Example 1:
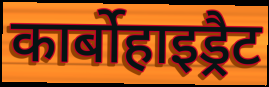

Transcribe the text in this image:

कार्बोहाइड्रैट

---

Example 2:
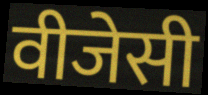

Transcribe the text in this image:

वीजेसी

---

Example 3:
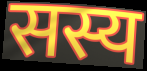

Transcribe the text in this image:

सस्य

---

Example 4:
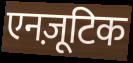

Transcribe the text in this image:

एनज़ूटिक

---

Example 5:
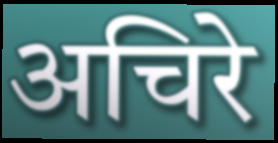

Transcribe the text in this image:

अचिरे